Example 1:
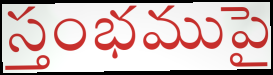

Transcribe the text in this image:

స్తంభముపై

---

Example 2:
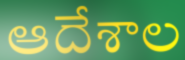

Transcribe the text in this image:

ఆదేశాల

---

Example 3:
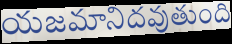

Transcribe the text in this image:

యజమానిదవుతుంది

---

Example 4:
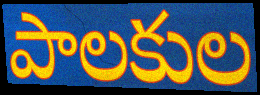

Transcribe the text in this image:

పాలకుల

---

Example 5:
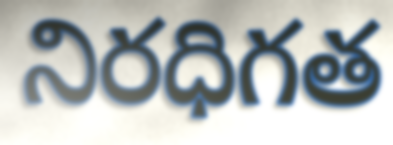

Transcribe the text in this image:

నిరధిగత